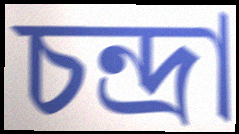
চন্দ্রা